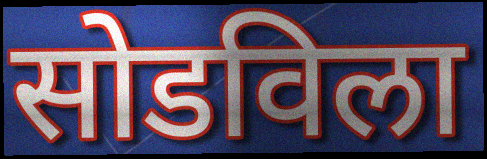
सोडविला